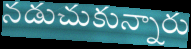
నడుచుకున్నారు